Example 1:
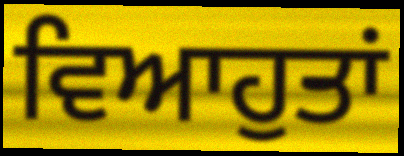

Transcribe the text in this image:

ਵਿਆਹੁਤਾਂ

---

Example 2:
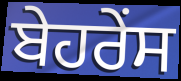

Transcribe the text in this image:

ਬੇਹਰੇਂਸ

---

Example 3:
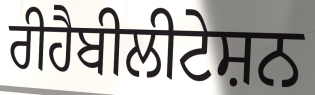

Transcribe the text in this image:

ਰੀਹੈਬੀਲੀਟੇਸ਼ਨ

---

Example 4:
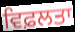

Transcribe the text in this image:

ਵਿਫ਼ਲਤਾ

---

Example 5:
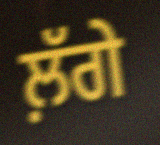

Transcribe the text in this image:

ਲ਼ੱਗੇ